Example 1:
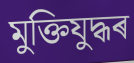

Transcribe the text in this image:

মুক্তিযুদ্ধৰ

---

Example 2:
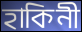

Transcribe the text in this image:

হাকিনী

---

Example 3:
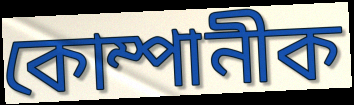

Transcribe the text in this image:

কোম্পানীক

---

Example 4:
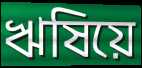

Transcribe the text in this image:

ঋষিয়ে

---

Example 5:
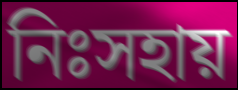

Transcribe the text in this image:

নিঃসহায়